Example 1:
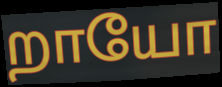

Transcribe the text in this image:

றாயோ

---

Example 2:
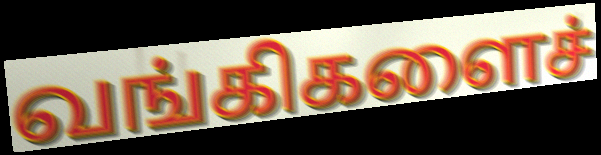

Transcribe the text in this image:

வங்கிகளைச்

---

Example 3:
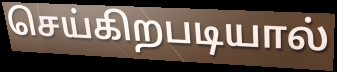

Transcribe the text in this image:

செய்கிறபடியால்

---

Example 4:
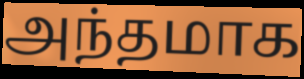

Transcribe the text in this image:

அந்தமாக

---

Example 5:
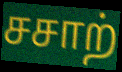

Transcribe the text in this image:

சசாற்